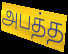
அபத்த